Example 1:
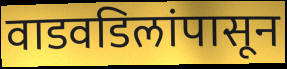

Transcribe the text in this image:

वाडवडिलांपासून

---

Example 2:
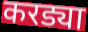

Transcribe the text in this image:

करड्या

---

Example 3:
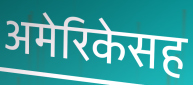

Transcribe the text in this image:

अमेरिकेसह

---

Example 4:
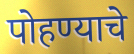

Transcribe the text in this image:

पोहण्याचे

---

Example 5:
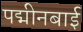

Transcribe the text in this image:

पद्मीनबाई